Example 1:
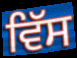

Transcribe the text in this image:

ਵਿੱਸ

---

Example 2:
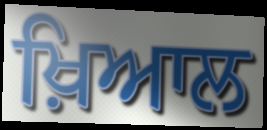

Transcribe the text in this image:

ਖ਼ਿਆਲ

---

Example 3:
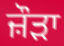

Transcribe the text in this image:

ਜ਼ੌੜਾ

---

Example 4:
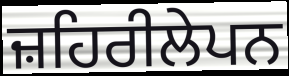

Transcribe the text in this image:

ਜ਼ਹਿਰੀਲੇਪਨ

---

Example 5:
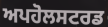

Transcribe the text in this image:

ਅਪਹੋਲਸਟਰਡ